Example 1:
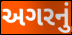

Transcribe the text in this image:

અગરનું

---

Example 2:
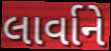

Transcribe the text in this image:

લાર્વાને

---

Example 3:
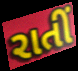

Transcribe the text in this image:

રાતીં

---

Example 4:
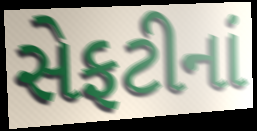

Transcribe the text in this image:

સેફટીનાં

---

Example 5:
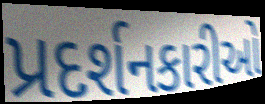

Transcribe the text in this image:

પ્રદર્શનકારીઓ